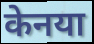
केनया